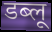
डब्लू